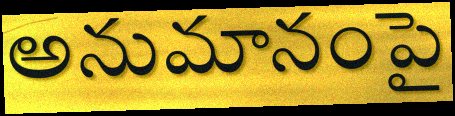
అనుమానంపై